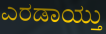
ಎರಡಾಯ್ತು